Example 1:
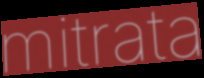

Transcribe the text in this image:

mitrata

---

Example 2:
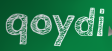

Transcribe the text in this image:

qoydi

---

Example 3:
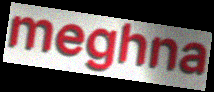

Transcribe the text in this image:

meghna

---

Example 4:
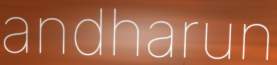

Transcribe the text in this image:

andharun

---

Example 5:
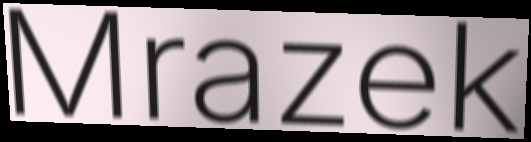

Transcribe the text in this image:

Mrazek